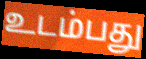
உடம்பது